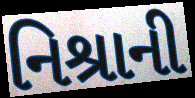
નિશ્રાની